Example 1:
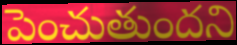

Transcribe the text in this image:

పెంచుతుందని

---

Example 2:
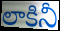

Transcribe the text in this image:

లాకినీ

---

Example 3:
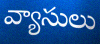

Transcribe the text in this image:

వ్యాసులు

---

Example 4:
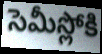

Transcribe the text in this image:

సెమీస్లోకి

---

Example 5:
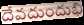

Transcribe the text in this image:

దేవదుందుభి